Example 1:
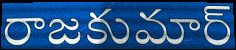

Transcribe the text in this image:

రాజకుమార్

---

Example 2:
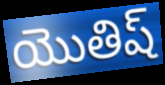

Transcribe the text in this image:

యొతిష్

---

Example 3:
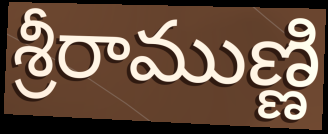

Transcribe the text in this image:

శ్రీరాముణ్ణి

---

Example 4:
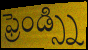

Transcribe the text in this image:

ఫ్రెండ్స్ని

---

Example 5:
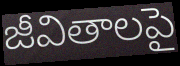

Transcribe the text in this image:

జీవితాలపై